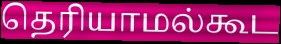
தெரியாமல்கூட